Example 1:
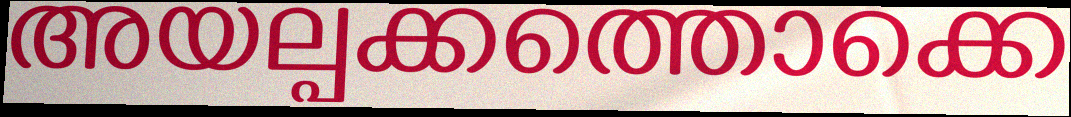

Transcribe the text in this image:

അയല്പക്കത്തൊക്കെ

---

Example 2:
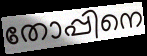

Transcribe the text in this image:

തോപ്പിനെ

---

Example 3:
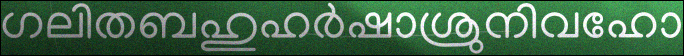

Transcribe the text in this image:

ഗലിതബഹുഹർഷാശ്രുനിവഹോ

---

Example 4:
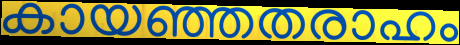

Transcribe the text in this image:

കായഞ്ഞതരാഹം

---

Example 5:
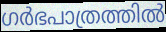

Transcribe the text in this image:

ഗർഭപാത്രത്തിൽ